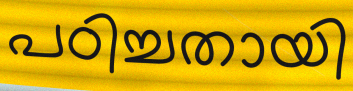
പഠിച്ചതായി